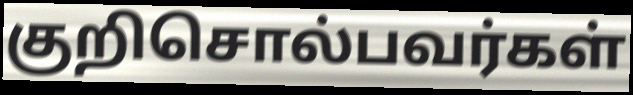
குறிசொல்பவர்கள்